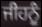
ਜੀਹਨੂੰ